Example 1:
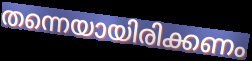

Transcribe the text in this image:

തന്നെയായിരിക്കണം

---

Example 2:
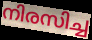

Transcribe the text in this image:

നിരസിച്ച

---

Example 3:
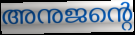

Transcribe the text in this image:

അനുജന്റെ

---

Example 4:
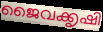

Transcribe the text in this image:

ജൈവക്കൃഷി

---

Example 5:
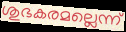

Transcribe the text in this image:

ശുഭകരമല്ലെന്ന്